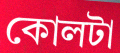
কোলটা